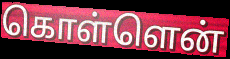
கொள்ளென்